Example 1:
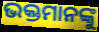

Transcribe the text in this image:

ଭକ୍ତମାନଙ୍କୁ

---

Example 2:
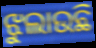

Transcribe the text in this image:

ଝୁଲାଉଛି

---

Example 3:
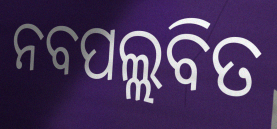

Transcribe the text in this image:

ନବପଲ୍ଲବିତ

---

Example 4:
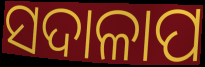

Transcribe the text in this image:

ସଦାଳାପ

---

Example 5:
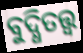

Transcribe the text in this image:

ବୁଦ୍ଧିତତ୍ତ୍ବ